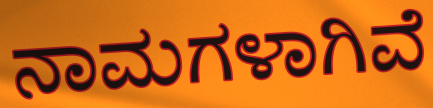
ನಾಮಗಳಾಗಿವೆ